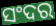
ସଂଦର